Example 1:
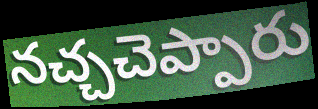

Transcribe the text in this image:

నచ్చచెప్పారు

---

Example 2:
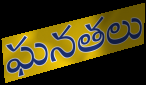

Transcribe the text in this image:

ఘనతలు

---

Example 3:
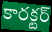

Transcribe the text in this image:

కారక్టర్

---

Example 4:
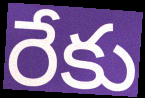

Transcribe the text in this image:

రేకు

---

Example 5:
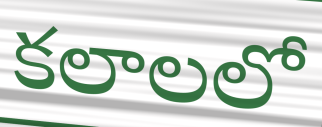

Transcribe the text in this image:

కలాలలో